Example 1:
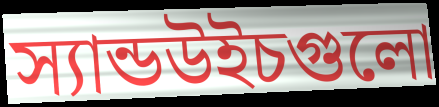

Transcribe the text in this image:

স্যান্ডউইচগুলো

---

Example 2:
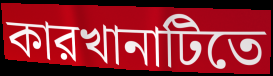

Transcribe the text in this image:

কারখানাটিতে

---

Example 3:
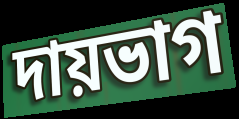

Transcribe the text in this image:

দায়ভাগ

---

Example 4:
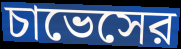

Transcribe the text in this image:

চাভেসের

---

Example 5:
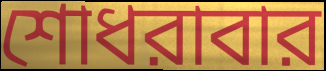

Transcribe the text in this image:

শোধরাবার